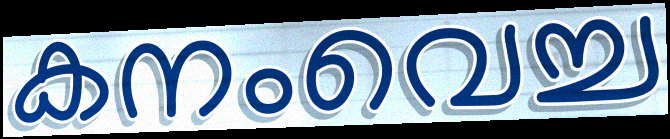
കനംവെച്ച